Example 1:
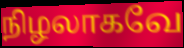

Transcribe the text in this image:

நிழலாகவே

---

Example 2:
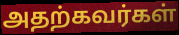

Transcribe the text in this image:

அதற்கவர்கள்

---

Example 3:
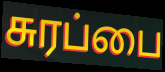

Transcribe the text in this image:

சுரப்பை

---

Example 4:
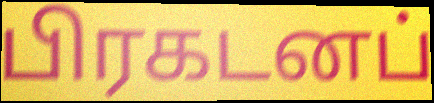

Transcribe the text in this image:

பிரகடனப்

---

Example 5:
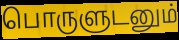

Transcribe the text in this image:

பொருளுடனும்